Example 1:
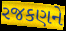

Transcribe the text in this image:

રજકણને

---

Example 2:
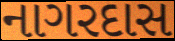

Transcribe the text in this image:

નાગરદાસ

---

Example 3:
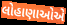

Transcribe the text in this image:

લોહાણાઓએ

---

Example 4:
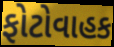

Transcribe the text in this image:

ફોટોવાહક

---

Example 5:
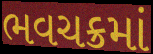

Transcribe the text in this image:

ભવચક્રમાં